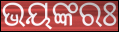
ଭୟଙ୍କରଃ